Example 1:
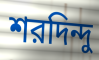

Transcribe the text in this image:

শরদিন্দু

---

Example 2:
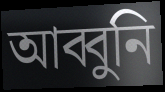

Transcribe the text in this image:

আব্বুনি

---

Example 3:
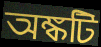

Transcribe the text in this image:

অঙ্কটি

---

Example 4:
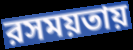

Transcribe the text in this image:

রসময়তায়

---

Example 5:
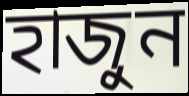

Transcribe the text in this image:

হাজুন